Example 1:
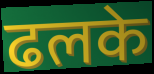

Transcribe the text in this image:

ढलके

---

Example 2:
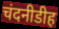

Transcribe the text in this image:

चंदनीडीह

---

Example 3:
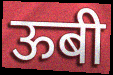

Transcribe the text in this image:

ऊबी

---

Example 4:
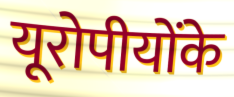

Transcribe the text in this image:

यूरोपीयोंके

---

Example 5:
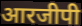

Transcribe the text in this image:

आरजीपी